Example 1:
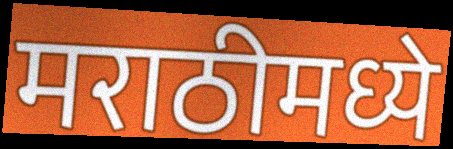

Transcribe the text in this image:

मराठीमध्ये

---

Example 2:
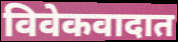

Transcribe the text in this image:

विवेकवादात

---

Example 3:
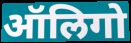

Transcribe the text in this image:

ऑलिगो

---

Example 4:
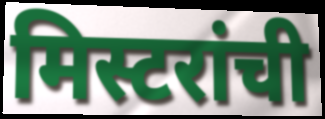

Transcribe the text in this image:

मिस्टरांची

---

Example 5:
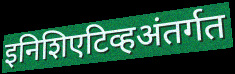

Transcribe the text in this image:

इनिशिएटिव्हअंतर्गत